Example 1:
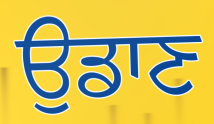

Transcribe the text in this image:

ਉਡਾਣ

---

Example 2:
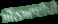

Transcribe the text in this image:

ਐੱਨਆਈਪੀ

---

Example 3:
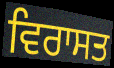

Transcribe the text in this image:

ਵਿਰਾਸਤ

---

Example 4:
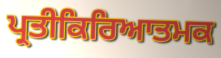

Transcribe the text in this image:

ਪ੍ਰਤੀਕਿਰਿਆਤਮਕ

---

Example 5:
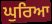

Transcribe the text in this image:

ਘੁਰਿਆ